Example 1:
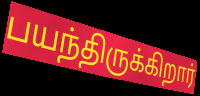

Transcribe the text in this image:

பயந்திருக்கிறார்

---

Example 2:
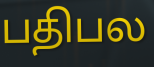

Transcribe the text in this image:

பதிபல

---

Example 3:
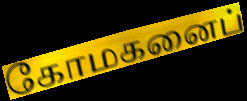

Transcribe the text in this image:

கோமகனைப்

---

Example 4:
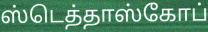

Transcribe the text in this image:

ஸ்டெத்தாஸ்கோப்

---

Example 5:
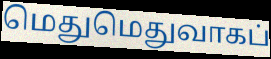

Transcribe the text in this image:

மெதுமெதுவாகப்